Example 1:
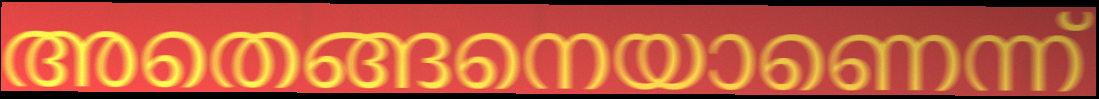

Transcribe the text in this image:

അതെങ്ങനെയാണെന്ന്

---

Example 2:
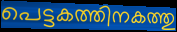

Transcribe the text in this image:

പെട്ടകത്തിനകത്തു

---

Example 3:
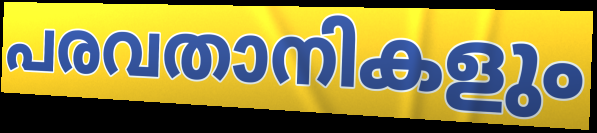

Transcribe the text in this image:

പരവതാനികളും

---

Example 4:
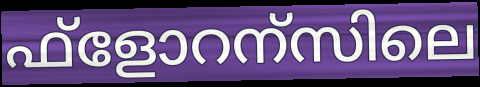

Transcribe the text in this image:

ഫ്ളോറന്സിലെ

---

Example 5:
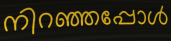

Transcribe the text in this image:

നിറഞ്ഞപ്പോൾ